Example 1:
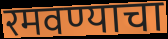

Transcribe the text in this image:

रमवण्याचा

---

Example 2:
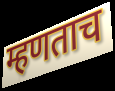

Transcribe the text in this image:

म्हणताच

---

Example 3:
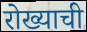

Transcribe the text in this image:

रोख्याची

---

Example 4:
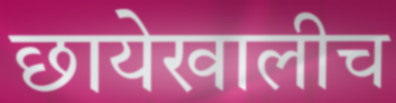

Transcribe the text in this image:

छायेखालीच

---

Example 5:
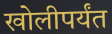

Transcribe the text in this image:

खोलीपर्यंत